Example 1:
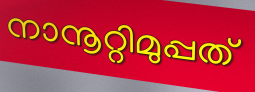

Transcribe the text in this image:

നാനൂറ്റിമുപ്പത്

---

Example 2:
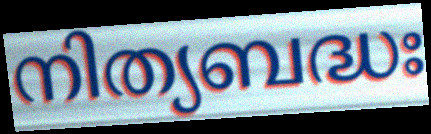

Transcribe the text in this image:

നിത്യബദ്ധഃ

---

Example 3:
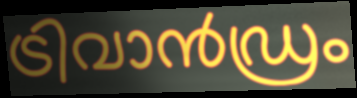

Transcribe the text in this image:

ട്രിവാൻഡ്രം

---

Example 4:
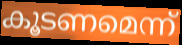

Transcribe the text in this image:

കൂടണമെന്ന്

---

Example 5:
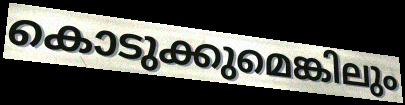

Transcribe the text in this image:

കൊടുക്കുമെങ്കിലും